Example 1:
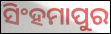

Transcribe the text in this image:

ସିଂହମାପୁର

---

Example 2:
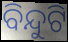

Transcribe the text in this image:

ବିନ୍ଦୁଟି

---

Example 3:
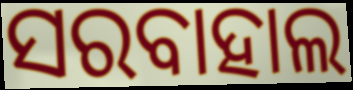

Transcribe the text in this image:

ସରବାହାଲ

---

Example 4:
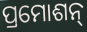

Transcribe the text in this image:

ପ୍ରମୋଶନ୍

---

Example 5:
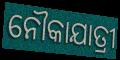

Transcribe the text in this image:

ନୌକାଯାତ୍ରୀ